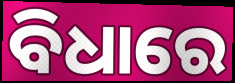
ବିଧାରେ